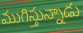
ముగిస్తున్నాడు